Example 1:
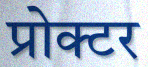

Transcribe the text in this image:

प्रोक्टर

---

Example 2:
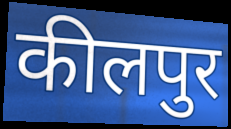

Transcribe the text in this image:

कीलपुर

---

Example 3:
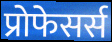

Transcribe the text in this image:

प्रोफेसर्स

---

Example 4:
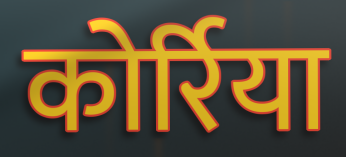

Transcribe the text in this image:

कोर्रिया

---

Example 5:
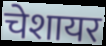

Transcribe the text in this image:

चेशायर